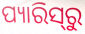
ପ୍ୟାରିସ୍‌ରୁ